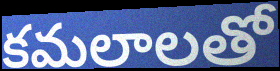
కమలాలతో